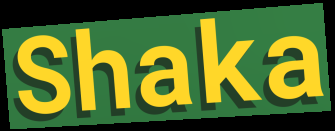
Shaka